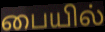
பையில்